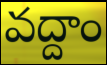
వద్దాం